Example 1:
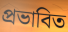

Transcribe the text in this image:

প্রভাবিত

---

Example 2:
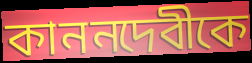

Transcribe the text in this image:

কাননদেবীকে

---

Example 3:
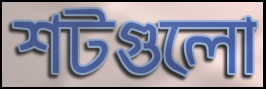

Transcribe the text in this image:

শটগুলো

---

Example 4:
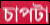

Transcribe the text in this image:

চাপটা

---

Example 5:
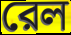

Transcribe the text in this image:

রেল